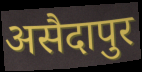
असैदापुर